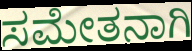
ಸಮೇತನಾಗಿ